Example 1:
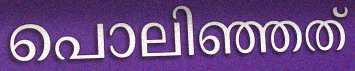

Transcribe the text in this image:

പൊലിഞ്ഞത്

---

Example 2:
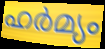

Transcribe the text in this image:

ഹർമ്യം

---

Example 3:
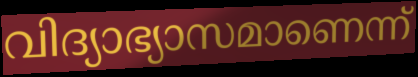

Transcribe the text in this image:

വിദ്യാഭ്യാസമാണെന്ന്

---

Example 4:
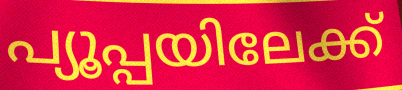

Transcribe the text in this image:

പ്യൂപ്പയിലേക്ക്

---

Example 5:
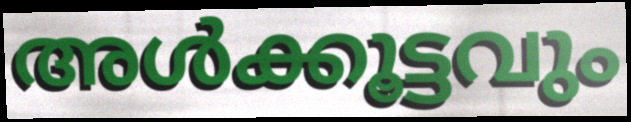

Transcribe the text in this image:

അൾക്കൂട്ടവും